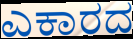
ಎಕಾರದ